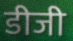
डीजी